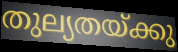
തുല്യതയ്ക്കു